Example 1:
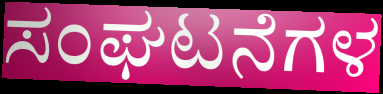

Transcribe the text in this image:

ಸಂಘಟನೆಗಳ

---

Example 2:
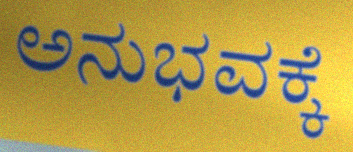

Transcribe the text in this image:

ಅನುಭವಕ್ಕೆ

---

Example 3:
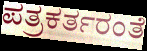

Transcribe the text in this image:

ಪತ್ರಕರ್ತರಂತೆ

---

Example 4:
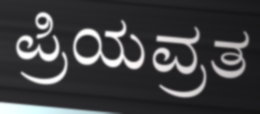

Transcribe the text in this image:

ಪ್ರಿಯವ್ರತ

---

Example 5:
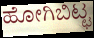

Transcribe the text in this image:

ಹೋಗಿಬಿಟ್ಟ